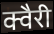
क्वैरी